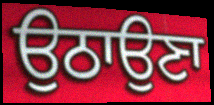
ਉਠਾਉਣਾ